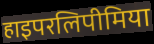
हाइपरलिपीमिया